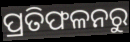
ପ୍ରତିଫଳନରୁ